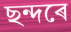
ছন্দৰে